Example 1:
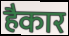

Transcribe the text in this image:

हैकार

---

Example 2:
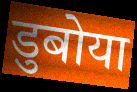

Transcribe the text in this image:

डुबोया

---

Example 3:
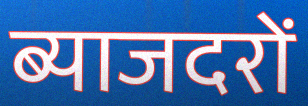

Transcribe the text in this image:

ब्याजदरों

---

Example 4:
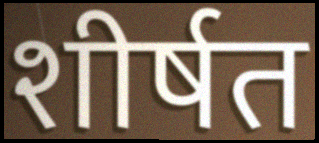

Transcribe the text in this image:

शीर्षत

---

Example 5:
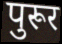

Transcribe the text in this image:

पुरूर